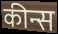
कीन्स